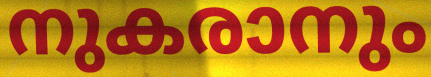
നുകരാനും